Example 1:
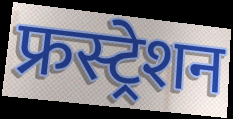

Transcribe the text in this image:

फ्रस्‍ट्रेशन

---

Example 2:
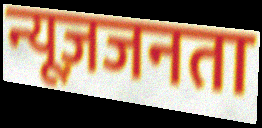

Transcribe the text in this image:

न्यूज़जनता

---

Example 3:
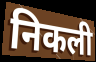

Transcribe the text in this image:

निकली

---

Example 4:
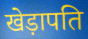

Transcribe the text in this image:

खेड़ापति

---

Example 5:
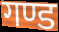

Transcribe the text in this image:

गण्ड